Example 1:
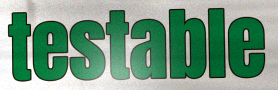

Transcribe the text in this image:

testable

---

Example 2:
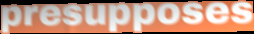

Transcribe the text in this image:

presupposes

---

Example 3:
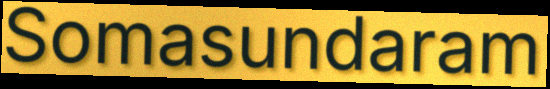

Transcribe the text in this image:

Somasundaram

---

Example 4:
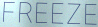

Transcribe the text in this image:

FREEZE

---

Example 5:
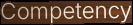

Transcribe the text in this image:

Competency